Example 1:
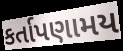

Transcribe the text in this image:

કર્તાપણામય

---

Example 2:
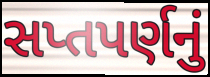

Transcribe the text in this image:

સપ્તપર્ણનું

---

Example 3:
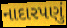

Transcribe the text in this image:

નાદારપણું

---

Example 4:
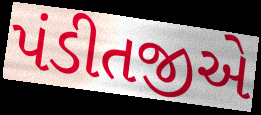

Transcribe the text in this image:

પંડીતજીએ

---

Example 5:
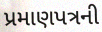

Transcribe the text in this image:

પ્રમાણપત્રની